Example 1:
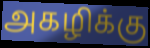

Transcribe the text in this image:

அகழிக்கு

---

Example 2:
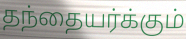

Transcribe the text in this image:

தந்தையர்க்கும்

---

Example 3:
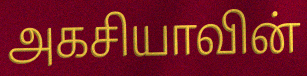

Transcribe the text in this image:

அகசியாவின்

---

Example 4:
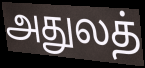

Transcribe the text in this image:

அதுலத்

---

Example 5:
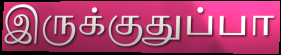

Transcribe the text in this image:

இருக்குதுப்பா